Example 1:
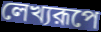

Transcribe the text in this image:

লেখ্যরূপে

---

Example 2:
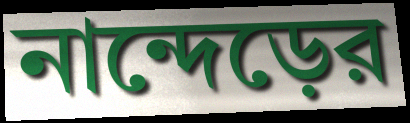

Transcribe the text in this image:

নান্দেড়ের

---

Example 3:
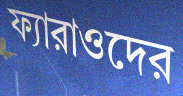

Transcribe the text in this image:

ফ্যারাওদের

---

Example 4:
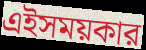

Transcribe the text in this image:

এইসময়কার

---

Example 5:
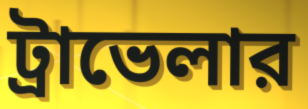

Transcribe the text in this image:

ট্রাভেলার